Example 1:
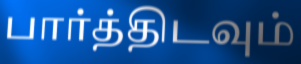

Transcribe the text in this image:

பார்த்திடவும்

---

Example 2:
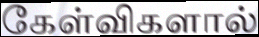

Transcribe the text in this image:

கேள்விகளால்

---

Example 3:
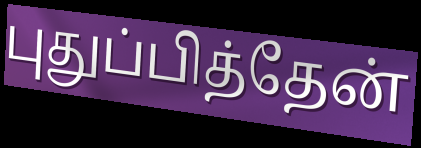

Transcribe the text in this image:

புதுப்பித்தேன்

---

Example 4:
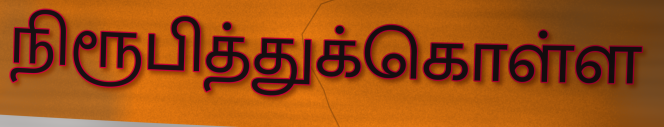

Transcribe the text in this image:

நிரூபித்துக்கொள்ள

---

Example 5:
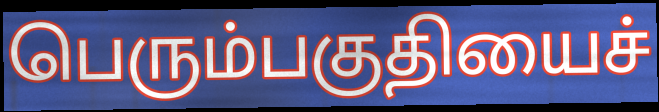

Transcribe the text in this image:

பெரும்பகுதியைச்